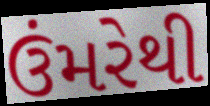
ઉંમરેથી